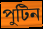
পুটিন